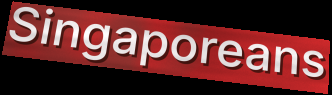
Singaporeans